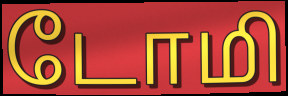
டோமி